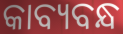
କାବ୍ୟବନ୍ଧ